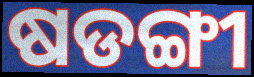
ଷଡଙ୍ଗୀ